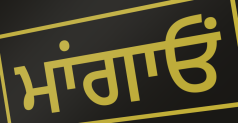
ਮਾਂਗਾਓਂ